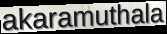
akaramuthala